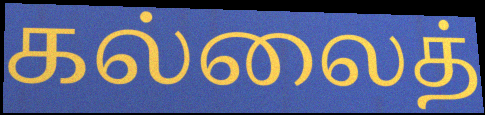
கல்லைத்